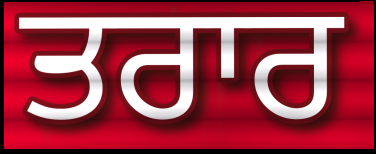
ਤਰਾਰ